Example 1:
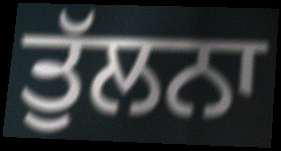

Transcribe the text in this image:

ਤੁੱਲਨਾ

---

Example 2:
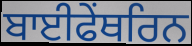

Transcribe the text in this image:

ਬਾਈਫੇਂਥਰਿਨ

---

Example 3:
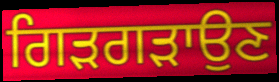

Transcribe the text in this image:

ਗਿੜਗੜਾਉਣ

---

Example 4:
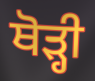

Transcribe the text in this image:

ਥੋਡ਼੍ਹੀ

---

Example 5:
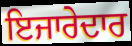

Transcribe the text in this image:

ਇਜਾਰੇਦਾਰ